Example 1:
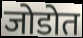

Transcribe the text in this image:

जोडोत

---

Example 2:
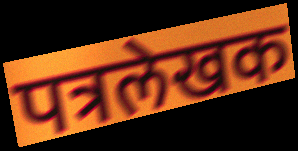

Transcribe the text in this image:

पत्रलेखक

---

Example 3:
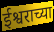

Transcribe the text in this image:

ईश्वराच्या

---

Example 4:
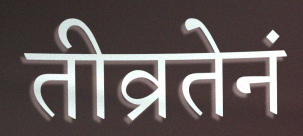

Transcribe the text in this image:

तीव्रतेनं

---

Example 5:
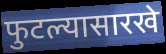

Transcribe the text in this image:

फुटल्यासारखे